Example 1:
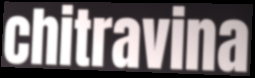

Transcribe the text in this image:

chitravina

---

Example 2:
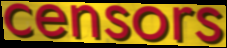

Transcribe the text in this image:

censors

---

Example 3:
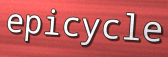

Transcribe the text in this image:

epicycle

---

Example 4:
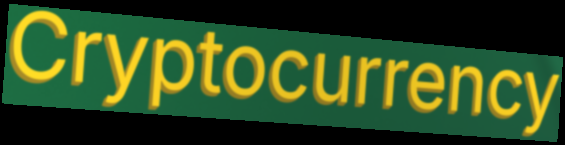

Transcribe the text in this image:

Cryptocurrency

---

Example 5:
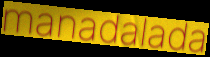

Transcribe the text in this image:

manadalada